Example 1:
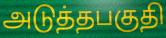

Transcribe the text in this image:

அடுத்தபகுதி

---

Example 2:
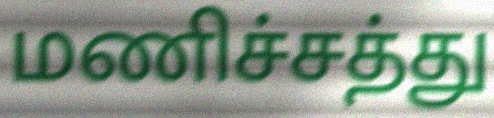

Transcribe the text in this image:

மணிச்சத்து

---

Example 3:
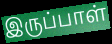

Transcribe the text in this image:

இருப்பாள்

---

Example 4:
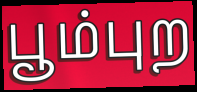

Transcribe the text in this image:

பூம்புற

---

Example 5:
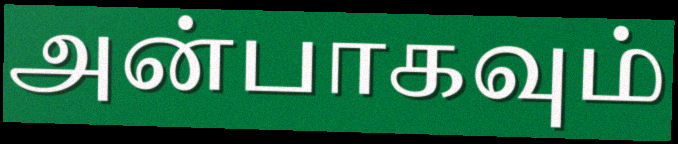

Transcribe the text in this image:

அன்பாகவும்